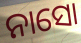
ନାସୋ